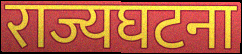
राज्यघटना